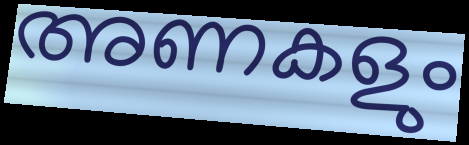
അണകളും